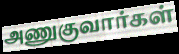
அணுகுவார்கள்